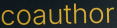
coauthor